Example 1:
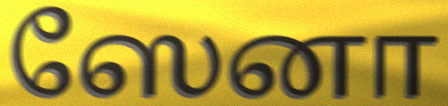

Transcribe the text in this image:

ஸேனா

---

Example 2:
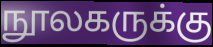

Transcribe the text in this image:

நூலகருக்கு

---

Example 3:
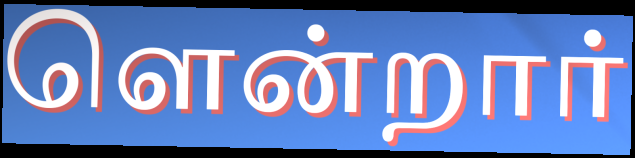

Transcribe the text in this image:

ளென்றார்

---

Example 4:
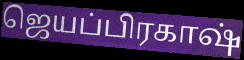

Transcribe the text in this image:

ஜெயப்பிரகாஷ்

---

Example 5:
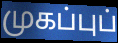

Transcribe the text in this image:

முகப்புப்